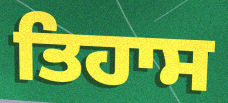
ਤਿਹਾਸ